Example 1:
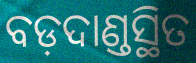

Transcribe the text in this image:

ବଡ଼ଦାଣ୍ଡସ୍ଥିତ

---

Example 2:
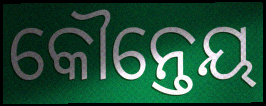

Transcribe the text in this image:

କୌନ୍ତେୟ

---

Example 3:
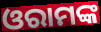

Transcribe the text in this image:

ଓରାମଙ୍କ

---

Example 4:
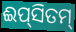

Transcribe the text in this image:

ଈପ୍‌ସିତମ୍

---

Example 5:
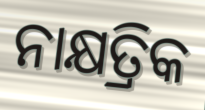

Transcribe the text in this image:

ନାକ୍ଷତ୍ରିକ